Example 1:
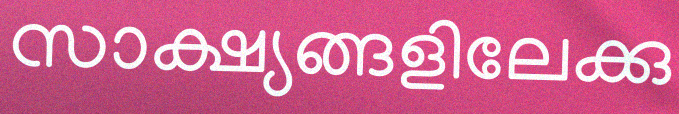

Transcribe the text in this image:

സാക്ഷ്യങ്ങളിലേക്കു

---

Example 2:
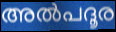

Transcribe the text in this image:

അൽപദൂര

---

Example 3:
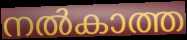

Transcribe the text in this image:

നൽകാത്ത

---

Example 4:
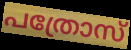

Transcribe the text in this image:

പത്രോസ്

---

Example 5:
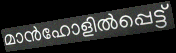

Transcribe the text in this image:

മാൻഹോളിൽപ്പെട്ട്